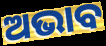
ଅଭାବ